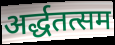
अर्द्धतत्सम